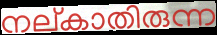
നല്കാതിരുന്ന